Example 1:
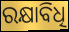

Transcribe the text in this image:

ରକ୍ଷାବିଧି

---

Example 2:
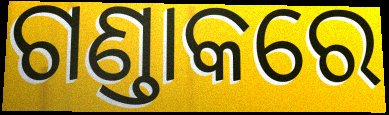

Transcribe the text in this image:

ଗଣ୍ଡାକରେ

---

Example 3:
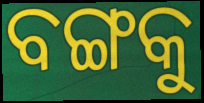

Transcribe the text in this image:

ବଙ୍ଗକୁ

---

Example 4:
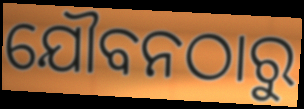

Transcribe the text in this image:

ଯୌବନଠାରୁ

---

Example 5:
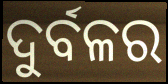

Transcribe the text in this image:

ଦୁର୍ବଳର